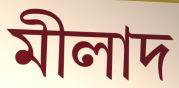
মীলাদ